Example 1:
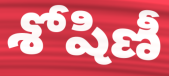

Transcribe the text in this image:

శోషిణీ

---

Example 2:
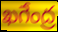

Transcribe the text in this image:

ఖగేంద్ర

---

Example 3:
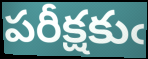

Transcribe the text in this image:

పరీక్షకుఁ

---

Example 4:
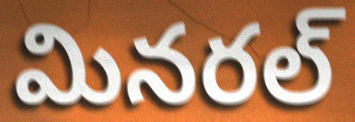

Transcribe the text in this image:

మినరల్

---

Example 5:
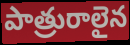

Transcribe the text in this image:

పాత్రురాలైన